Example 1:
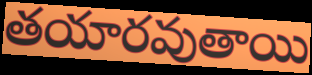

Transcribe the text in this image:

తయారవుతాయి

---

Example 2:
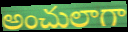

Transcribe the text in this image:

అంచులాగా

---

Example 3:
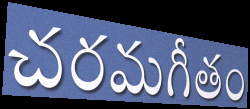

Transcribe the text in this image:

చరమగీతం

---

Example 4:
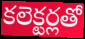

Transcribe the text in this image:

కలెక్టర్లతో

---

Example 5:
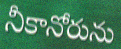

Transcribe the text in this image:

నీకానోరును